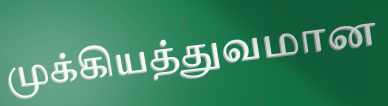
முக்கியத்துவமான